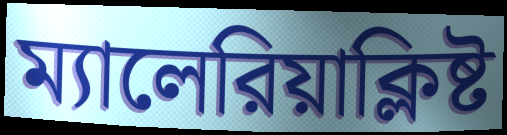
ম্যালেরিয়াক্লিষ্ট